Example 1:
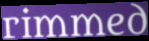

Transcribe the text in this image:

rimmed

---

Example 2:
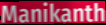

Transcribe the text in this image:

Manikanth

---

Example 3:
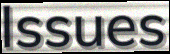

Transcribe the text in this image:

Issues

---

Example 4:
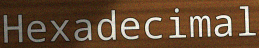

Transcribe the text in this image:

Hexadecimal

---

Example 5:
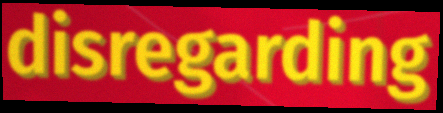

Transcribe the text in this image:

disregarding